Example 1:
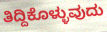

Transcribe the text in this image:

ತಿದ್ದಿಕೊಳ್ಳುವುದು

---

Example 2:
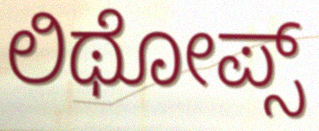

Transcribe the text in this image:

ಲಿಥೋಪ್ಸ್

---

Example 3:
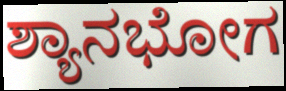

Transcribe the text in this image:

ಶ್ಯಾನಭೋಗ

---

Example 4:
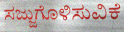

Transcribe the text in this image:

ಸಜ್ಜುಗೊಳಿಸುವಿಕೆ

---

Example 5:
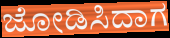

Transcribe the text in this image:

ಜೋಡಿಸಿದಾಗ